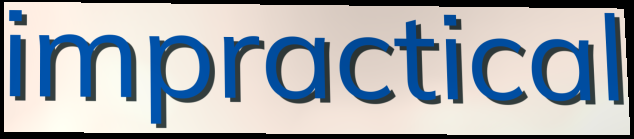
impractical